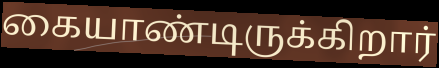
கையாண்டிருக்கிறார்